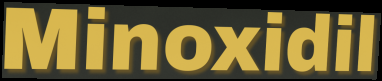
Minoxidil